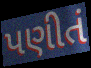
પણીતં